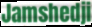
Jamshedji